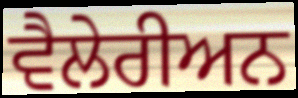
ਵੈਲੇਰੀਅਨ